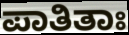
ಪಾತಿತಾಃ